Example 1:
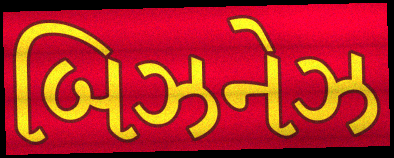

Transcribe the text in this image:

બિઝનેઝ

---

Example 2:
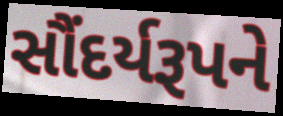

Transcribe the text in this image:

સૌંદર્યરૂપને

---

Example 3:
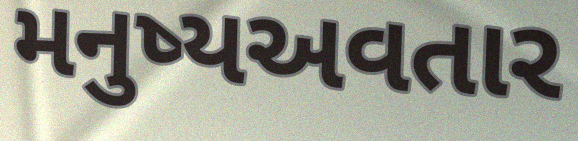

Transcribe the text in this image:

મનુષ્યઅવતાર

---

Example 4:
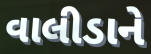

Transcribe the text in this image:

વાલીડાને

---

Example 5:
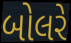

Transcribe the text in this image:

બોલરે